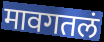
मावगतलं